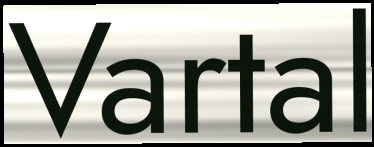
Vartal